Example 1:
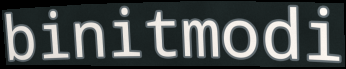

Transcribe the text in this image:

binitmodi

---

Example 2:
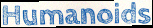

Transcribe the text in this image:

Humanoids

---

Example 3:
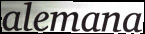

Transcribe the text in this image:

alemana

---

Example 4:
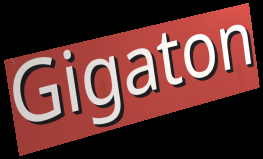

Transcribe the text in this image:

Gigaton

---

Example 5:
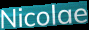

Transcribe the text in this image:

Nicolae